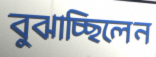
বুঝাচ্ছিলেন